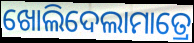
ଖୋଲିଦେଲାମାତ୍ରେ